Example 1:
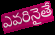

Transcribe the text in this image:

ఎవరినైతే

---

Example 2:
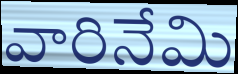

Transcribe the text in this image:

వారినేమి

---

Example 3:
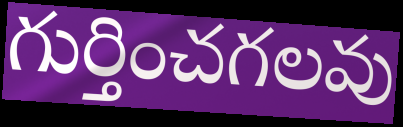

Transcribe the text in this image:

గుర్తించగలవు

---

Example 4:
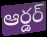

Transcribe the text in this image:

ఆర్డర్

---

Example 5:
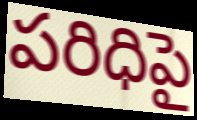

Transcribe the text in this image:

పరిధిపై